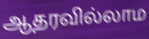
ஆதரவில்லாம